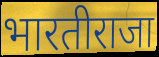
भारतीराजा